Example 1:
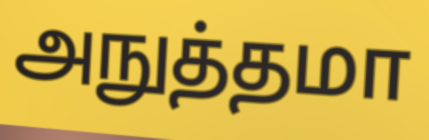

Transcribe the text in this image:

அநுத்தமா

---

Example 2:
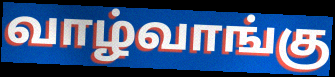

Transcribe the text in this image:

வாழ்வாங்கு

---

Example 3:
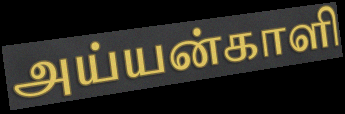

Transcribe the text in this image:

அய்யன்காளி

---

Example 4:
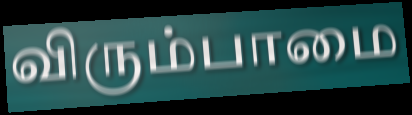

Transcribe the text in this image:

விரும்பாமை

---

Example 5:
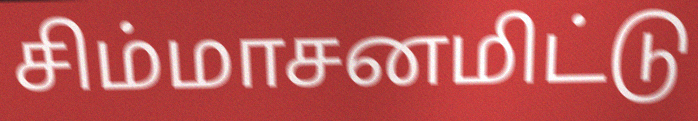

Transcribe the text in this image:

சிம்மாசனமிட்டு